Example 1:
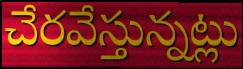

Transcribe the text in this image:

చేరవేస్తున్నట్లు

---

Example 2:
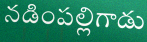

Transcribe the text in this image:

నడింపల్లిగాడు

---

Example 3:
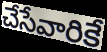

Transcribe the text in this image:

చేసేవారికే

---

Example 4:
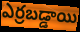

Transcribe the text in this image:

ఎర్రబడ్డాయి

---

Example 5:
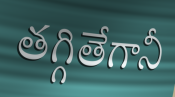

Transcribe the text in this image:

తగ్గితేగానీ